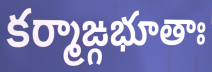
కర్మాఙ్గభూతాః